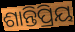
ଶାନ୍ତିପ୍ରିୟ